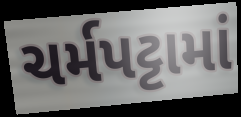
ચર્મપટ્ટામાં